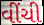
વીંચી